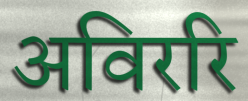
अविररि